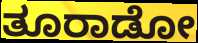
ತೂರಾಡೋ